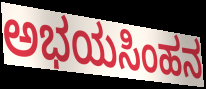
ಅಭಯಸಿಂಹನ